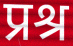
प्रश्र